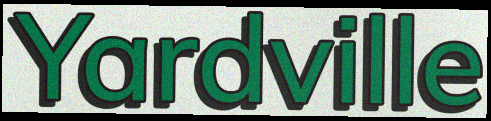
Yardville